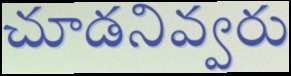
చూడనివ్వరు